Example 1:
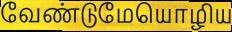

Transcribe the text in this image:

வேண்டுமேயொழிய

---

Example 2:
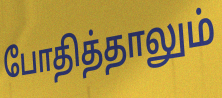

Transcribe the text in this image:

போதித்தாலும்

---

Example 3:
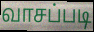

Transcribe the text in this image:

வாசப்படி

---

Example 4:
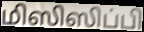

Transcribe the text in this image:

மிஸிஸிப்பி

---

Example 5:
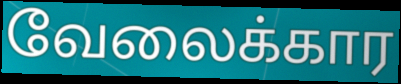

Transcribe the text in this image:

வேலைக்கார